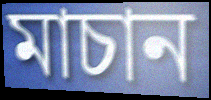
মাচান